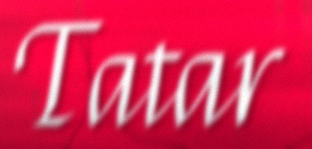
Tatar